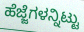
ಹೆಜ್ಜೆಗಳನ್ನಿಟ್ಟು